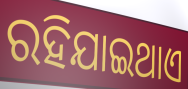
ରହିଯାଇଥାଏ